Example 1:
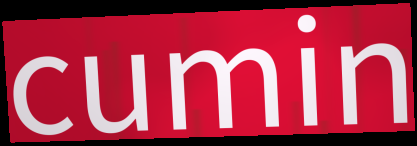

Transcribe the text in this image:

cumin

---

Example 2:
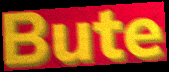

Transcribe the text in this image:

Bute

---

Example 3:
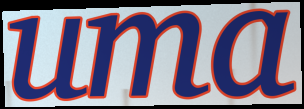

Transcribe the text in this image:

uma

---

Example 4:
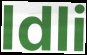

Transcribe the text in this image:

Idli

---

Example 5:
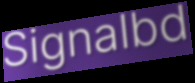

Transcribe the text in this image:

Signalbd